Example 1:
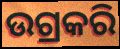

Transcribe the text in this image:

ଉଗ୍ରକରି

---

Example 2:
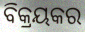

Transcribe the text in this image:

ବିକ୍ରୟକର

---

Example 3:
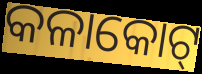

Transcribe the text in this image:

କଳାକୋଟ୍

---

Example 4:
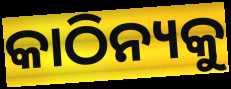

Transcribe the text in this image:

କାଠିନ୍ୟକୁ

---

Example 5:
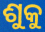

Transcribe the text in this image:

ଶୁକୁ